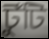
টুঁটি